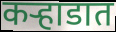
कऱ्हाडात